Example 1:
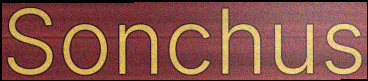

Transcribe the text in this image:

Sonchus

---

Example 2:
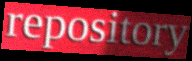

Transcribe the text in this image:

repository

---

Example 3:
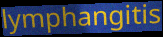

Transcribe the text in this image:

lymphangitis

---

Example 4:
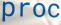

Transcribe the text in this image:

proc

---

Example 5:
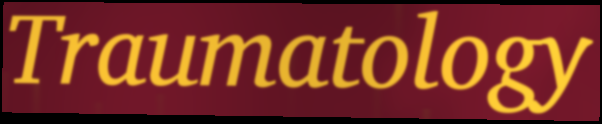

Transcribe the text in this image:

Traumatology